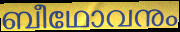
ബീഥോവനും